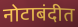
नोटाबंदीत